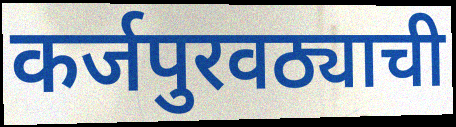
कर्जपुरवठ्याची